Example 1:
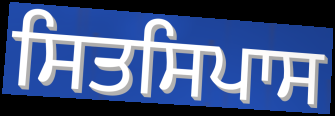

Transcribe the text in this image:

ਸਿਤਸਿਪਾਸ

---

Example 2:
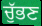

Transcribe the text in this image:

ਚੁੱਭਣ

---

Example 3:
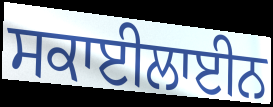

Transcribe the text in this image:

ਸਕਾਈਲਾਈਨ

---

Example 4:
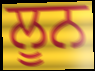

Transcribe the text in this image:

ਲੂਨ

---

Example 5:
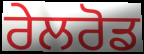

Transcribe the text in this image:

ਰੇਲਰੋਡ